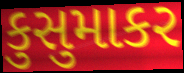
કુસુમાકર